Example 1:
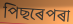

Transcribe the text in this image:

পিছৰেপৰা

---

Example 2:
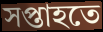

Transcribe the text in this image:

সপ্তাহতে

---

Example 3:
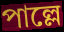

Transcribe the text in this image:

পাল্লে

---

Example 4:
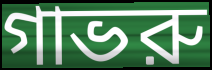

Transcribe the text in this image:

গাভৰু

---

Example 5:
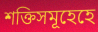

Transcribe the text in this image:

শক্তিসমূহেহে